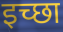
इच्‍छा